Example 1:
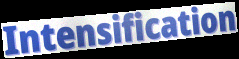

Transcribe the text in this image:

Intensification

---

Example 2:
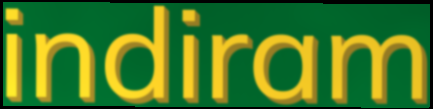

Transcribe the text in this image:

indiram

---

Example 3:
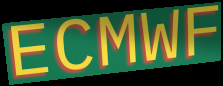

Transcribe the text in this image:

ECMWF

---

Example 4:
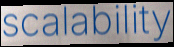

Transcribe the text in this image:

scalability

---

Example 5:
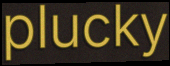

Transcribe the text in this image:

plucky